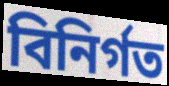
বিনির্গত